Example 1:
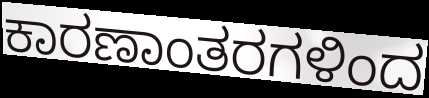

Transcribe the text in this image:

ಕಾರಣಾಂತರಗಳಿಂದ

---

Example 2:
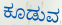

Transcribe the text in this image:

ಕೂಡುವ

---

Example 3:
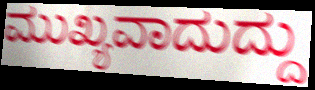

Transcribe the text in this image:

ಮುಖ್ಯವಾದುದ್ದು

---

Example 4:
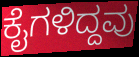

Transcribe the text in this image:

ಕೈಗಳಿದ್ದವು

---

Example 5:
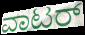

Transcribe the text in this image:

ವಾಟರ್